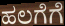
ಹಲಗೆಗೆ